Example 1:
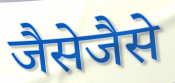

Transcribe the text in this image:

जैसेजैसे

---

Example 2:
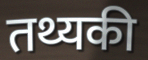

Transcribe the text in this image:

तथ्यकी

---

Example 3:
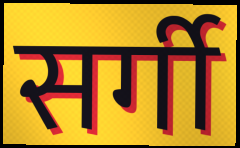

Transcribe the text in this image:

सर्गी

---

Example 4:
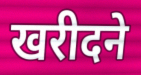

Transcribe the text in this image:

खरीदने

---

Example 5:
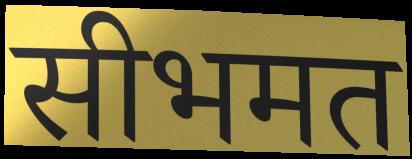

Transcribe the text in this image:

सीभमत